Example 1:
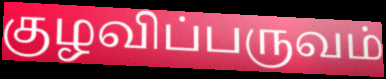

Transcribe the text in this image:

குழவிப்பருவம்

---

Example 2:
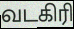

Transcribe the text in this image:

வடகிரி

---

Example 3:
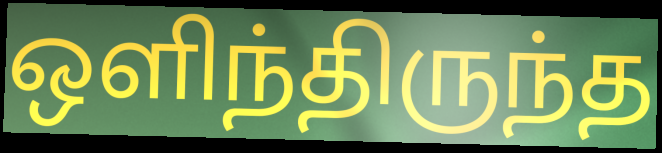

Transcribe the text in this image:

ஒளிந்திருந்த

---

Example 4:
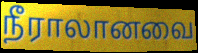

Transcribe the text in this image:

நீராலானவை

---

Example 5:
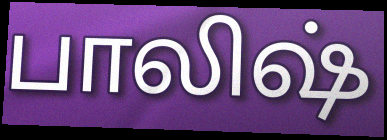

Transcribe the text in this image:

பாலிஷ்